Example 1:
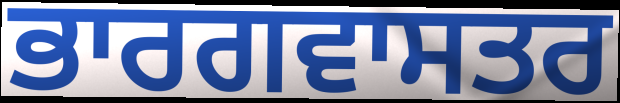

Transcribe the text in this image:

ਭਾਰਗਵਾਸਤਰ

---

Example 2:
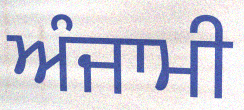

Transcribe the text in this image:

ਅੰਜਾਮੀ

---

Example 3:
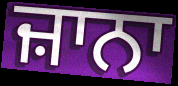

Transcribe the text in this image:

ਜ਼ਾਨਾ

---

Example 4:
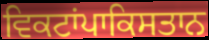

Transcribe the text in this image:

ਵਿਕਟਾਂਪਾਕਿਸਤਾਨ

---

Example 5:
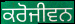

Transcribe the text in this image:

ਕਰੋਜੀਵਨ